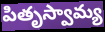
పితృస్వామ్య